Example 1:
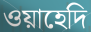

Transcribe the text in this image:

ওয়াহেদি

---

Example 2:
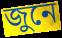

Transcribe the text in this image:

জুনে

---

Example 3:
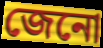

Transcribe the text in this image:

জেনো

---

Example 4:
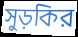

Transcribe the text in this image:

সুড়কির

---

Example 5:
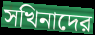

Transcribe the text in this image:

সখিনাদের